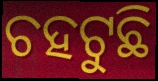
ଚହଟୁଛି